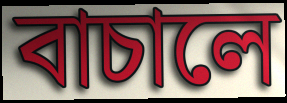
বাচালে